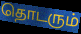
தொடரும்